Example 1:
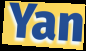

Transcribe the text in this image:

Yan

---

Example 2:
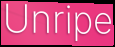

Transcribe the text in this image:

Unripe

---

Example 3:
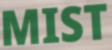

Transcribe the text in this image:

MIST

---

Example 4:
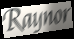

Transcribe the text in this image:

Raynor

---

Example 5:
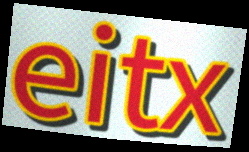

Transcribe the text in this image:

eitx